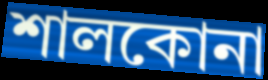
শালকোনা